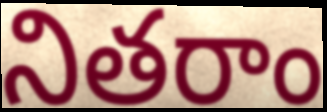
నితరాం